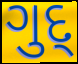
ગુદ્